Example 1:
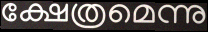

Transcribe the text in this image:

ക്ഷേത്രമെന്നു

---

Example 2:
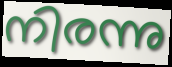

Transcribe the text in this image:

നിരന്നു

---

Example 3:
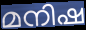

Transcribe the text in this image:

മനിഷ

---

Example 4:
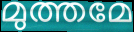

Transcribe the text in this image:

മുത്തമേ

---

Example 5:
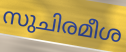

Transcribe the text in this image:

സുചിരമീശ